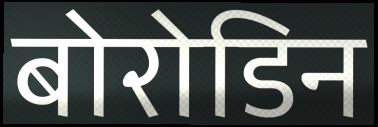
बोरोडिन